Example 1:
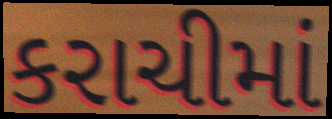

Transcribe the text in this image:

કરાચીમાં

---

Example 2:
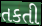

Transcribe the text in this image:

તકતી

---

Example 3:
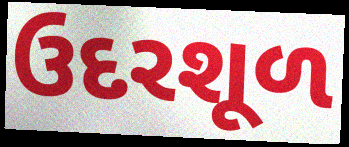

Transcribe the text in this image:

ઉદરશૂળ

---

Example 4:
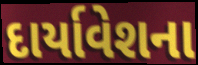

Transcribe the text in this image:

દાર્યાવેશના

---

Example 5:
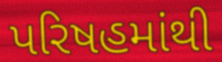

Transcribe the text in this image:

પરિષહમાંથી